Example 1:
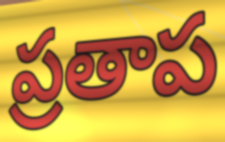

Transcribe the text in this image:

ప్రతాప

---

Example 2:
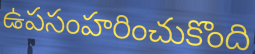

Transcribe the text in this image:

ఉపసంహరించుకొంది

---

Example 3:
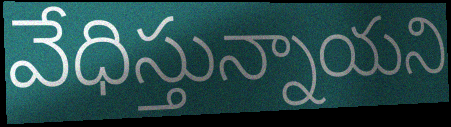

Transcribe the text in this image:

వేధిస్తున్నాయని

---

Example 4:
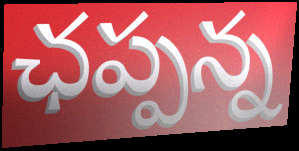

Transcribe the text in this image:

ఛప్పన్న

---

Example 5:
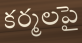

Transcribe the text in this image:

కర్మలపై